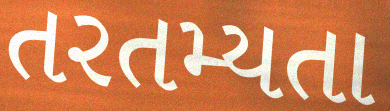
તરતમ્યતા